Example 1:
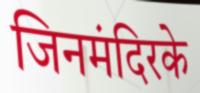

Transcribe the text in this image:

जिनमंदिरके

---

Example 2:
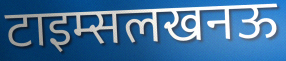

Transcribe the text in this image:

टाइम्सलखनऊ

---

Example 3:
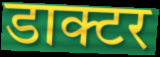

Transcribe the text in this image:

डाक्टर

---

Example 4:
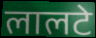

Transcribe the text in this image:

लालटे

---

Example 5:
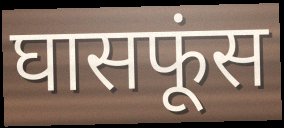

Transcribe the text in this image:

घासफूंस